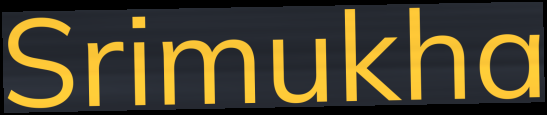
Srimukha